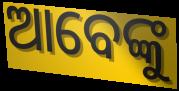
ଆବେଙ୍କୁ